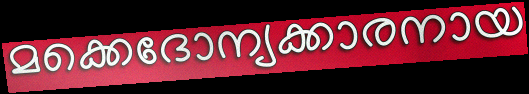
മക്കെദോന്യക്കാരനായ